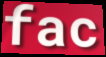
fac